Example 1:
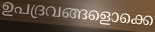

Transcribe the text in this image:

ഉപദ്രവങ്ങളൊക്കെ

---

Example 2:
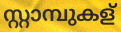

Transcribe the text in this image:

സ്റ്റാമ്പുകള്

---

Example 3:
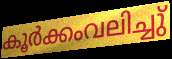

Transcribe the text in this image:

കൂർക്കംവലിച്ചു്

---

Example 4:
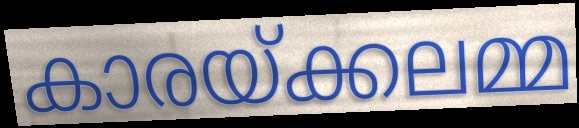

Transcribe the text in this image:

കാരയ്ക്കലമ്മ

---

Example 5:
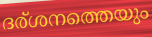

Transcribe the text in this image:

ദര്ശനത്തെയും